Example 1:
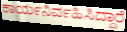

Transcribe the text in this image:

ಕಾರ್ಯನಿರ್ವಹಿಸಿದ್ದಾರೆ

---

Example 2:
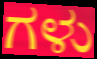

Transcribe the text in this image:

ಗಳು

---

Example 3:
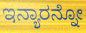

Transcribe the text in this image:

ಇನ್ಯಾರನ್ನೋ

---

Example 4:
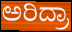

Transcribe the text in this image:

ಅರಿದ್ರಾ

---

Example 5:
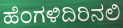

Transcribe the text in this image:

ಹೆಂಗಳಿದಿರಿನಲಿ